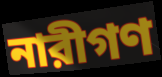
নারীগণ